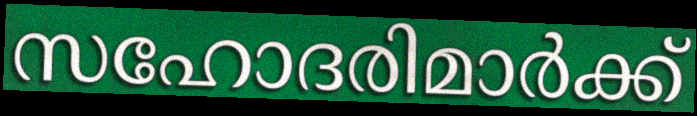
സഹോദരിമാർക്ക്